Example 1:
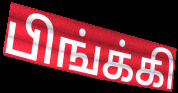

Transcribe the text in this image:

பிங்க்கி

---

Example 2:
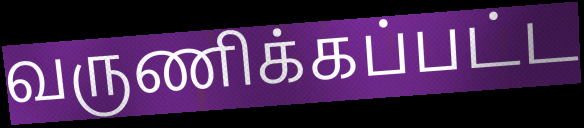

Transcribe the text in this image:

வருணிக்கப்பட்ட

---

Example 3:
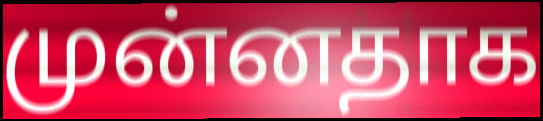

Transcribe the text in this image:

முன்னதாக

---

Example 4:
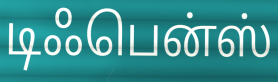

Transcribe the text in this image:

டிஃபென்ஸ்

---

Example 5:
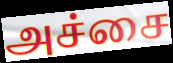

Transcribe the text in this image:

அச்சை